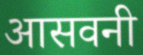
आसवनी